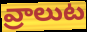
వ్రాలుట